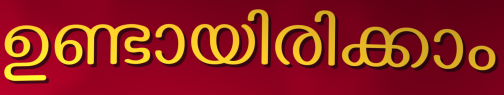
ഉണ്ടായിരിക്കാം